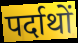
पर्दाथों